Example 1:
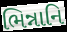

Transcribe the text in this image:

ભિન્નાનિ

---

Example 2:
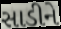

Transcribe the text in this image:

સાડીને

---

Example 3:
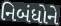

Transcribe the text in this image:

નિબંધોને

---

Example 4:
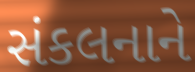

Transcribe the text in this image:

સંકલનાને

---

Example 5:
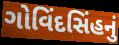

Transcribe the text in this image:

ગોવિંદસિંહનું